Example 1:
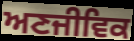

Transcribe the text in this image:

ਅਣਜੀਵਿਕ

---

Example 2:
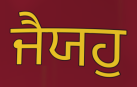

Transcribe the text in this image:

ਜੈਯਹੁ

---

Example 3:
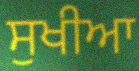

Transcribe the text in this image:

ਸੁਖੀਆ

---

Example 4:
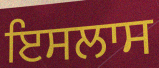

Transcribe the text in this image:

ਇਸਲਾਸ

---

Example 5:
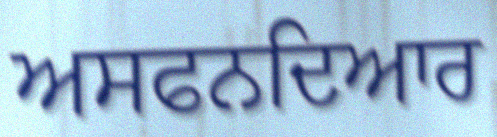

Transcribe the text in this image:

ਅਸਫਨਦਿਆਰ